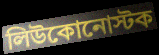
লিউকোনোস্টক